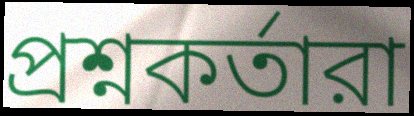
প্রশ্নকর্তারা